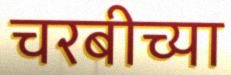
चरबीच्या